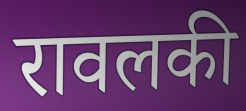
रावलकी